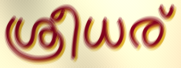
ശ്രീധര്